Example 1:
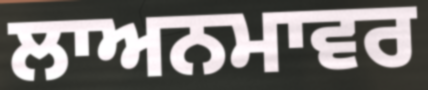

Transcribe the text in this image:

ਲਾਅਨਮਾਵਰ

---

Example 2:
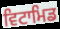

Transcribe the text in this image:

ਵਿਟਾਮਿਡ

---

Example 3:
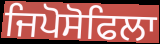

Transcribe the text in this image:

ਜਿਪੋਸੋਫਿਲਾ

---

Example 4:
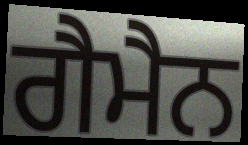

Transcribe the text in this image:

ਗੈਮੈਨ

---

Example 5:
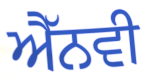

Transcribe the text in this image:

ਐੱਨਵੀ